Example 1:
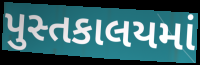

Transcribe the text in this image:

પુસ્તકાલયમાં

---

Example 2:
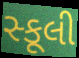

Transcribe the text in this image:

સ્કૂલી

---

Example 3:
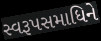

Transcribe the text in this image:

સ્વરૂપસમાધિને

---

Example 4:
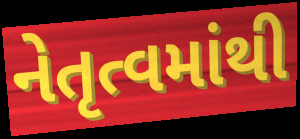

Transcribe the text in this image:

નેતૃત્વમાંથી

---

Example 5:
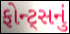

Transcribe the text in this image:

ફોન્ટ્સનું